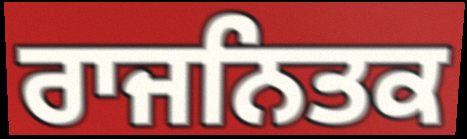
ਰਾਜਨਿਤਕ